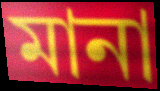
মানা